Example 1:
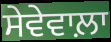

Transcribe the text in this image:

ਸੇਵੇਵਾਲ਼ਾ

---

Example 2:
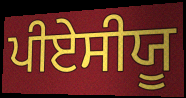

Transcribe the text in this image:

ਪੀਏਸੀਯੂ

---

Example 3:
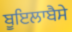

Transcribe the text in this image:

ਬੂਇਲਾਬੈਸੇ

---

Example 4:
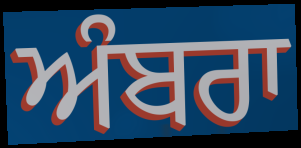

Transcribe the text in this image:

ਅੰਬਰਾ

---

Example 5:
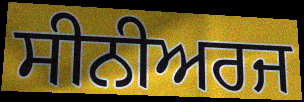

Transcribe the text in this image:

ਸੀਨੀਅਰਜ